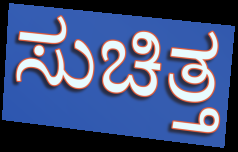
ಸುಚಿತ್ತ